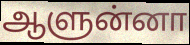
ஆளுன்னா